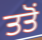
ਤਤੋਂ